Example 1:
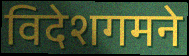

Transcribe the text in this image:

विदेशगमने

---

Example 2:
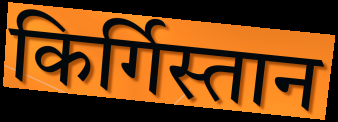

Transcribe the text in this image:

किर्गिस्‍तान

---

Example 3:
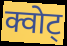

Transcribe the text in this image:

क्वोट्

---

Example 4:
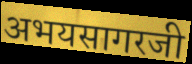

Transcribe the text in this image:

अभयसागरजी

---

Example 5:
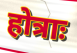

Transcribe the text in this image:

होत्राः